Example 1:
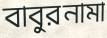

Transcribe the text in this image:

বাবুরনামা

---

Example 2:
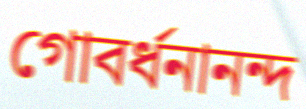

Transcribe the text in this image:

গোবর্ধনানন্দ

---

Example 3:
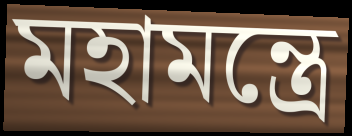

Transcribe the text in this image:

মহামন্ত্রে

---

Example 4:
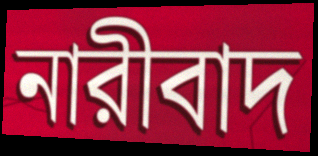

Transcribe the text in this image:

নারীবাদ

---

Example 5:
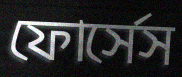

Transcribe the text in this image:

ফোর্সেস